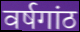
वर्षगांठ